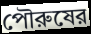
পৌরুষের